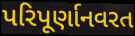
પરિપૂર્ણાનવરત